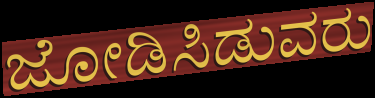
ಜೋಡಿಸಿಡುವರು